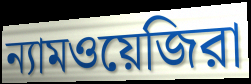
ন্যামওয়েজিরা